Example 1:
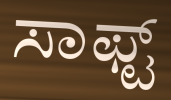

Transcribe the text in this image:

ಸಾಫ್ಟ್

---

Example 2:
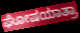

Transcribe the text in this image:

ಘೋಷಯಾತ್ರಾ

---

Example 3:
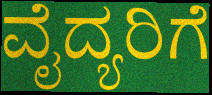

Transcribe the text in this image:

ವೈದ್ಯರಿಗೆ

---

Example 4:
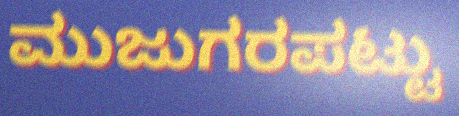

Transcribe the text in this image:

ಮುಜುಗರಪಟ್ಟು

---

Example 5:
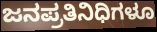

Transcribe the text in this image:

ಜನಪ್ರತಿನಿಧಿಗಳೂ